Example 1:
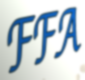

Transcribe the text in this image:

FFA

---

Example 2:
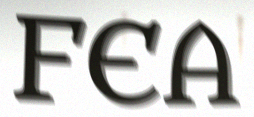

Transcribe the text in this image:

FEA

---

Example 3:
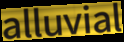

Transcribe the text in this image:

alluvial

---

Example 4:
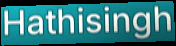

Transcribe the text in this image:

Hathisingh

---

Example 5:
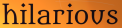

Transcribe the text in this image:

hilarious